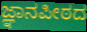
ಜ್ಞಾನಪೀಠದ